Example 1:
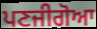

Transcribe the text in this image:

ਪਣਜੀਗੋਆ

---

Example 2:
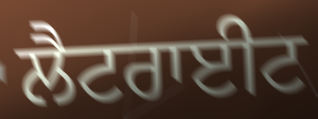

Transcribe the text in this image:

ਲੈਟਰਾਈਟ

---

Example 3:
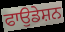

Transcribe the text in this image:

ਫਾਉਡੇਸ਼ਨ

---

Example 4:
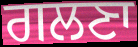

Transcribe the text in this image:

ਗਲਣਾ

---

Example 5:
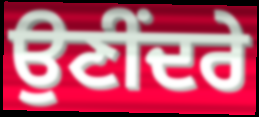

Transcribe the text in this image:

ਉਣੀਂਦਰੇ